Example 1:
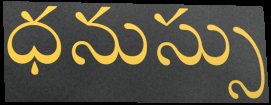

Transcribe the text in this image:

ధనుస్సు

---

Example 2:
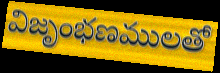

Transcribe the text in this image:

విజృంభణములతో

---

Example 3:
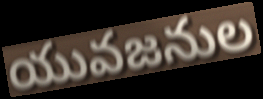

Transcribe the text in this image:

యువజనుల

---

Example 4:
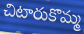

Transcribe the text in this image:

చిటారుకొమ్మ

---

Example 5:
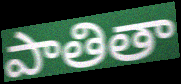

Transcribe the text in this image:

పాతితా